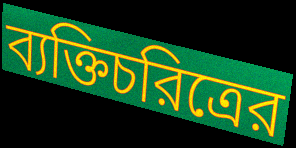
ব্যক্তিচরিত্রের